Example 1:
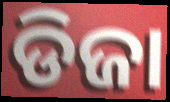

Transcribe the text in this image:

ଡିଜା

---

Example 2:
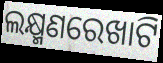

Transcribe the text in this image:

ଲକ୍ଷ୍ମଣରେଖାଟି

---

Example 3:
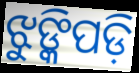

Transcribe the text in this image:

ଝୁଙ୍କିପଡ଼ି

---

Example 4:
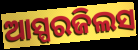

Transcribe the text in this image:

ଆସ୍ପରଜିଲସ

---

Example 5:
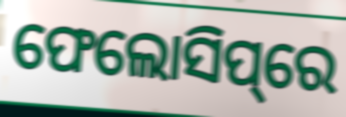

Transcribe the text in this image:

ଫେଲୋସିପ୍‌ରେ